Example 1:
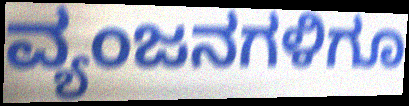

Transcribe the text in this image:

ವ್ಯಂಜನಗಳಿಗೂ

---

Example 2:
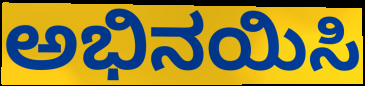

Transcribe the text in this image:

ಅಭಿನಯಿಸಿ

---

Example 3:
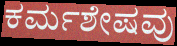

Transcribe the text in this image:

ಕರ್ಮಶೇಷವು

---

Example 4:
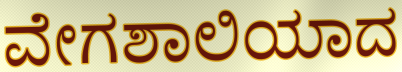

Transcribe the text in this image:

ವೇಗಶಾಲಿಯಾದ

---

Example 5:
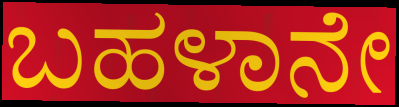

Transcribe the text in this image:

ಬಹಳಾನೇ